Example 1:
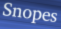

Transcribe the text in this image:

Snopes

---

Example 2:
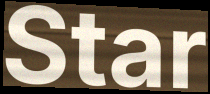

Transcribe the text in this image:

Star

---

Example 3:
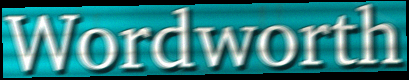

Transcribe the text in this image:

Wordworth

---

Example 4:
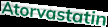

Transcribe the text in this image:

Atorvastatin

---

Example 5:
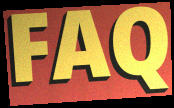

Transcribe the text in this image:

FAQ